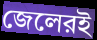
জেলেরই